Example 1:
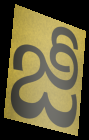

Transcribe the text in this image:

జీ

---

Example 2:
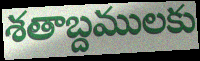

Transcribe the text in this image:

శతాబ్దములకు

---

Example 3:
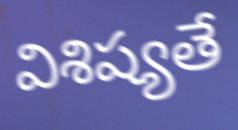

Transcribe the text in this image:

విశిష్యతే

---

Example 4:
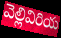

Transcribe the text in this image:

వెల్లివిరియ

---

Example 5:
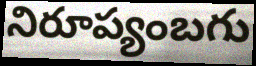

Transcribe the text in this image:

నిరూప్యంబగు